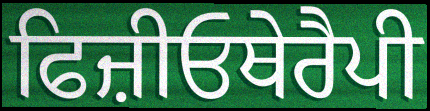
ਫਿਜ਼ੀਓਥੇਰੈਪੀ